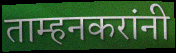
ताम्हनकरांनी